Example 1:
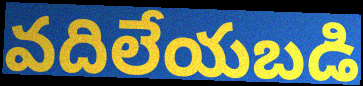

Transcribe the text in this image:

వదిలేయబడి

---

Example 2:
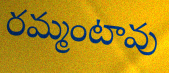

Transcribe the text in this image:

రమ్మంటావు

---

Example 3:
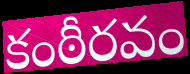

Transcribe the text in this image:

కంఠీరవం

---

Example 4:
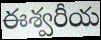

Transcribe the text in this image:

ఈశ్వరీయ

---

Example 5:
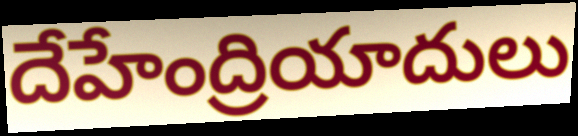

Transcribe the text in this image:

దేహేంద్రియాదులు